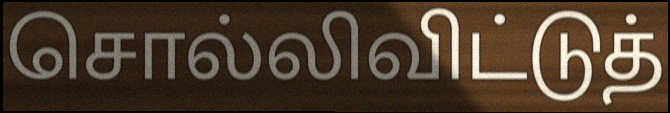
சொல்லிவிட்டுத்